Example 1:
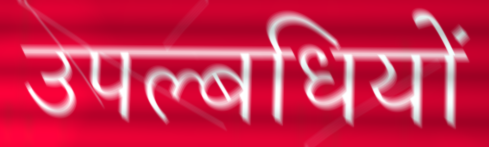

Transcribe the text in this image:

उपल्बधियों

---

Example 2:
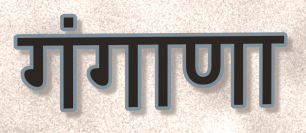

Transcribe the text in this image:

गंगाणा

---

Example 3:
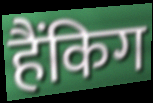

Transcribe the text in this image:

हैंकिग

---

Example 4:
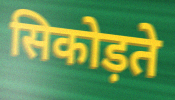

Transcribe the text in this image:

सिकोड़ते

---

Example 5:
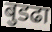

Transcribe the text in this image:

बुडढा